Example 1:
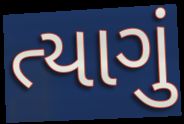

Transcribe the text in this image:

ત્યાગું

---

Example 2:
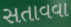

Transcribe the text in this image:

સતાવવા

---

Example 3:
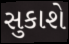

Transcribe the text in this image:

સુકાશે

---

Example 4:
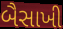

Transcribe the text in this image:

બૈસાખી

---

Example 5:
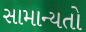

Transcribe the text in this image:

સામાન્યતો